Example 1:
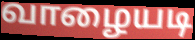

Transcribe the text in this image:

வாழையடி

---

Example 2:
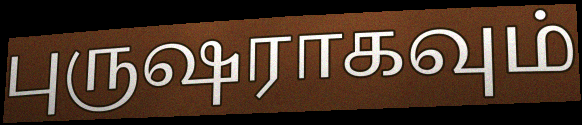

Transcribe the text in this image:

புருஷராகவும்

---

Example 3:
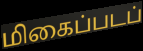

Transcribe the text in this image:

மிகைப்படப்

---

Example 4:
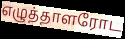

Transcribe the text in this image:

எழுத்தாளரோட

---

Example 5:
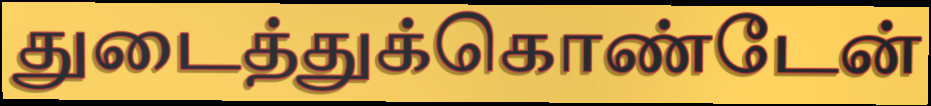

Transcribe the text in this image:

துடைத்துக்கொண்டேன்